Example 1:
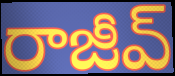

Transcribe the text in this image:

రాజీవ్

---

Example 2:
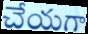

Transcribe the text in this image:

చేయగా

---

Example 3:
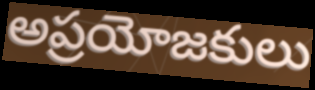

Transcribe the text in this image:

అప్రయోజకులు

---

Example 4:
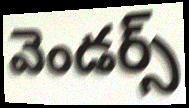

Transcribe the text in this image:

వెండర్స్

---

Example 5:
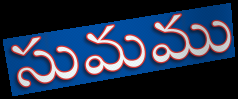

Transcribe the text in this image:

సుమము